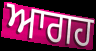
ਆਗਹ